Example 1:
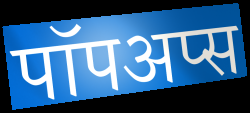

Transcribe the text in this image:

पॉपअप्स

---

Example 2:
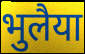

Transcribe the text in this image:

भुलैया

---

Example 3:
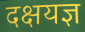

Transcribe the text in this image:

दक्षयज्ञ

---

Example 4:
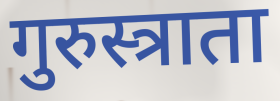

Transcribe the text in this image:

गुरुस्त्राता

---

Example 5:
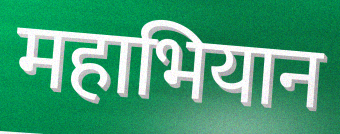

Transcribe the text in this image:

महाभियान